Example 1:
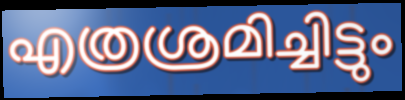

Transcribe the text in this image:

എത്രശ്രമിച്ചിട്ടും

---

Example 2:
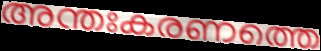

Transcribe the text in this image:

അന്തഃകരണത്തെ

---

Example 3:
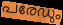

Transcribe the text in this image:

പരേഡും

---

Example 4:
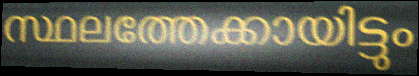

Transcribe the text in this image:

സ്ഥലത്തേക്കായിട്ടും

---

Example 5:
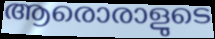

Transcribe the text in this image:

ആരൊരാളുടെ